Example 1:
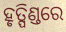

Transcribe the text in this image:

ହୃତ୍ପିଣ୍ଡରେ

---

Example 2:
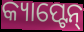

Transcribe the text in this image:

କ୍ୟାପ୍ଟେନ୍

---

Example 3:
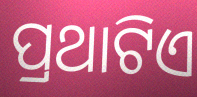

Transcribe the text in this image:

ପ୍ରଥାଟିଏ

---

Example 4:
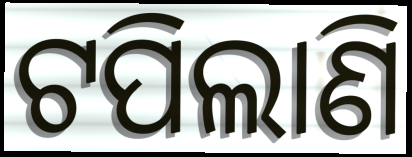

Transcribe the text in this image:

ଟପିଲାଣି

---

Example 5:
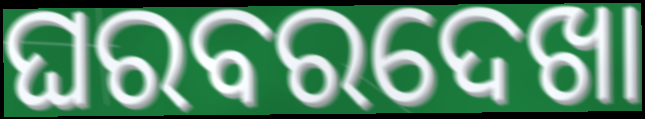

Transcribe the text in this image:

ଘରବରଦେଖା